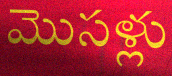
మొసళ్లు